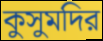
কুসুমদির